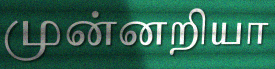
முன்னறியா